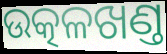
ଉତ୍କଳଖଣ୍ତ